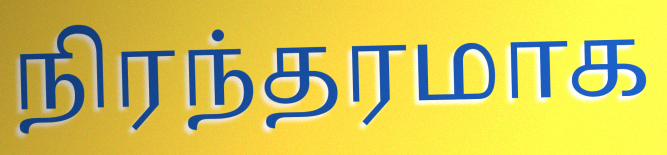
நிரந்தரமாக